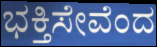
ಭಕ್ತಿಸೇವೆಂದ